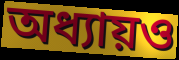
অধ্যায়ও